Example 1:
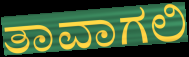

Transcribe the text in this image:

ತಾವಾಗಲಿ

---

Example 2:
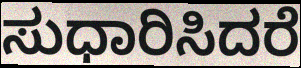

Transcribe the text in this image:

ಸುಧಾರಿಸಿದರೆ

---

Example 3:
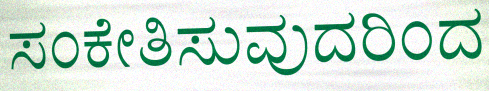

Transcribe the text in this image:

ಸಂಕೇತಿಸುವುದರಿಂದ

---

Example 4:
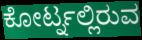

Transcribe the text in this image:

ಕೋರ್ಟ್ನಲ್ಲಿರುವ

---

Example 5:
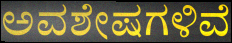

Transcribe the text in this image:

ಅವಶೇಷಗಳಿವೆ